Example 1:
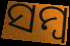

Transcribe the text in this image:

ସମ୍ବ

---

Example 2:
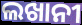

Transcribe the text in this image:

ଲଖାନୀ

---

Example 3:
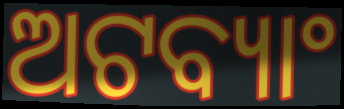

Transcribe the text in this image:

ଅଟବ୍ୟାଂ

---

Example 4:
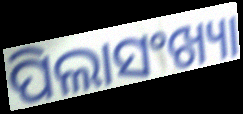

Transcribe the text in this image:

ପିଲାସଂଖ୍ୟା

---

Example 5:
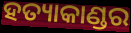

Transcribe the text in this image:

ହତ୍ୟାକାଣ୍ଡର